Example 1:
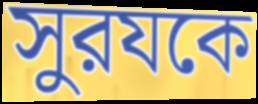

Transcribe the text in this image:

সুরযকে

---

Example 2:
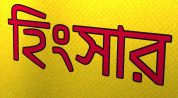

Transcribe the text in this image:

হিংসার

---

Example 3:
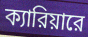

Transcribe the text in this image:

ক্যারিয়ারে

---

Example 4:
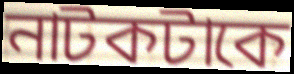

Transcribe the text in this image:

নাটকটাকে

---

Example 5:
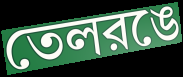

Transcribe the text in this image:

তেলরঙে